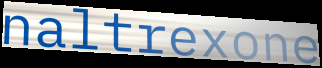
naltrexone